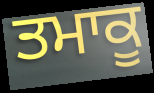
ਤਮਾਕੂ